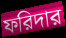
ফরিদার